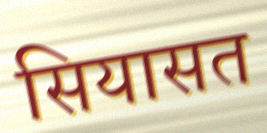
सियासत